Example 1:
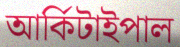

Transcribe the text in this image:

আৰ্কিটাইপাল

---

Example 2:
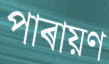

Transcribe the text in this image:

পাৰায়ণ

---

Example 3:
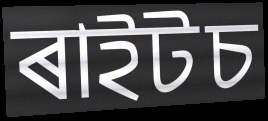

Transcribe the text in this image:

ৰাইটচ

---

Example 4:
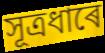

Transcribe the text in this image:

সূত্ৰধাৰে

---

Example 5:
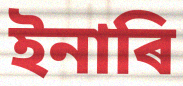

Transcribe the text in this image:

ইনাৰি